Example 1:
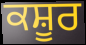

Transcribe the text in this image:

ਕਸ਼ੂਰ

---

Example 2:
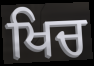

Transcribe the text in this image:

ਖਿਚ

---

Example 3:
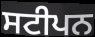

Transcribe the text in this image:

ਸਟੀਪਨ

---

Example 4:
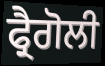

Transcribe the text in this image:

ਫ੍ਰੈਗੋਲੀ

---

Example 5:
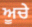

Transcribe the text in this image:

ਅੂਚੇ